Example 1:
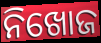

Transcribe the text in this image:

ନିଖୋଜ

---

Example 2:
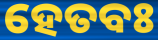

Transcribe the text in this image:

ହେତବଃ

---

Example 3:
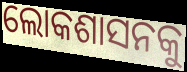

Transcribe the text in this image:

ଲୋକଶାସନକୁ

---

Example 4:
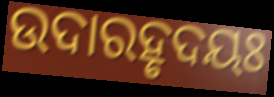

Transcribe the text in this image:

ଉଦାରହୃଦୟଃ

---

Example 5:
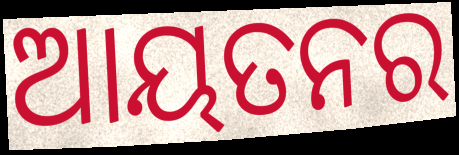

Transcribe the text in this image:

ଆୟତନର